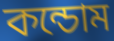
কন্ডোম